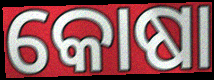
କୋଷା